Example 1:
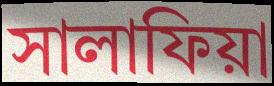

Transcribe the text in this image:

সালাফিয়া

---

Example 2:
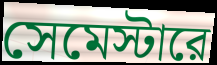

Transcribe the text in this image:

সেমেস্টারে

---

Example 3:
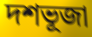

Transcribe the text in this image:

দশভূজা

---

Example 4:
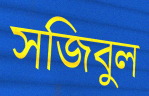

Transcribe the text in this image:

সজিবুল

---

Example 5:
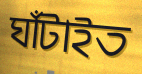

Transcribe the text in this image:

ঘাঁটাইত